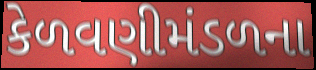
કેળવણીમંડળના